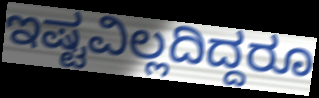
ಇಷ್ಟವಿಲ್ಲದಿದ್ದರೂ